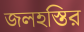
জলহস্তির